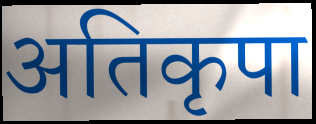
अतिकृपा